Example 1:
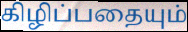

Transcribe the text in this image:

கிழிப்பதையும்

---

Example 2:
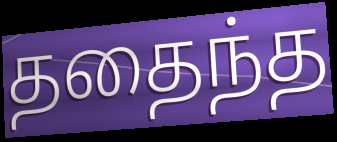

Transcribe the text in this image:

ததைந்த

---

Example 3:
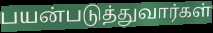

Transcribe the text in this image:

பயன்படுத்துவார்கள்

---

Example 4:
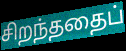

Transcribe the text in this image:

சிறந்ததைப்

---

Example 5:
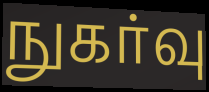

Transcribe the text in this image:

நுகர்வு